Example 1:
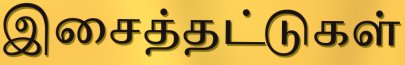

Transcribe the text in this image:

இசைத்தட்டுகள்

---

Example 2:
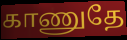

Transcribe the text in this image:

காணுதே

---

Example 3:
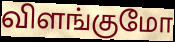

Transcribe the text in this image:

விளங்குமோ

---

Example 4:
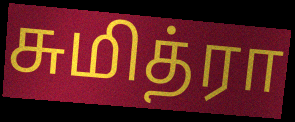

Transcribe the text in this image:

சுமித்ரா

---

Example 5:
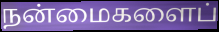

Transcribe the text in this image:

நன்மைகளைப்